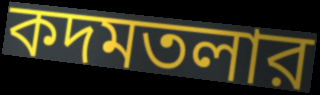
কদমতলার